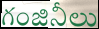
గంజినీలు